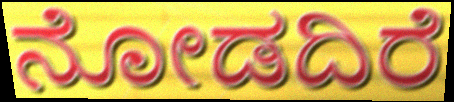
ನೋಡದಿರೆ